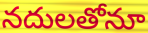
నదులతోనూ